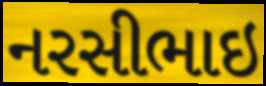
નરસીભાઇ